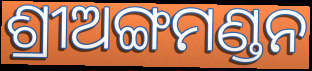
ଶ୍ରୀଅଙ୍ଗମଣ୍ଡନ